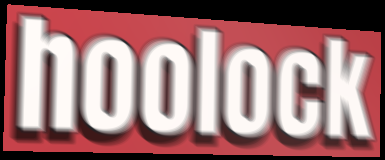
hoolock